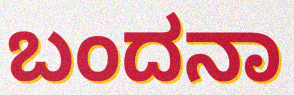
ಬಂದನಾ